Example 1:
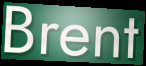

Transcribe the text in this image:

Brent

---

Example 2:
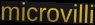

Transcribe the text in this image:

microvilli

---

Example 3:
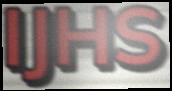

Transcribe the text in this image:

IJHS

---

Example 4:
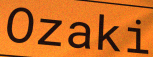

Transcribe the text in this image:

Ozaki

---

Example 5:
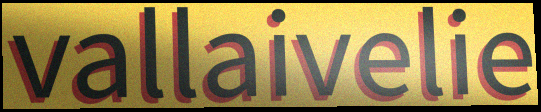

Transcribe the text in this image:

vallaivelie